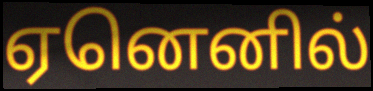
ஏனெனில்